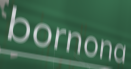
bornona